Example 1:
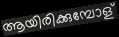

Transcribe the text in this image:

ആയിരിക്കുമ്പോള്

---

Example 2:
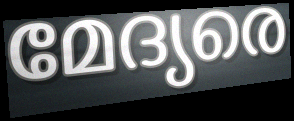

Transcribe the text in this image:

മേദ്യരെ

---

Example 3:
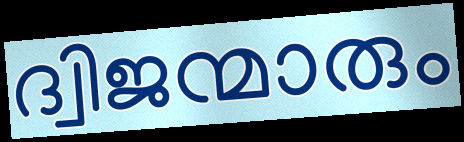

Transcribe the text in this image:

ദ്വിജന്മാരും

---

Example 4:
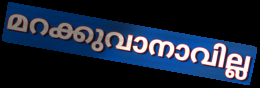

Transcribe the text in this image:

മറക്കുവാനാവില്ല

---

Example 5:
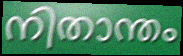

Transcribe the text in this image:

നിതാന്തം